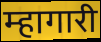
म्हागारी